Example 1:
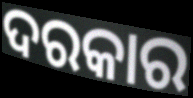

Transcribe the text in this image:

ଦରକାର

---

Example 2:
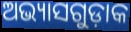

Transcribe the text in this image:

ଅଭ୍ୟାସଗୁଡ଼ାକ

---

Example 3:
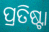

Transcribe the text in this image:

ପ୍ରତିଷ୍ଟା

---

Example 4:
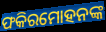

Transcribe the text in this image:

ଫକିରମୋହନଙ୍କ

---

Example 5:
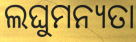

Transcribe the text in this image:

ଲଘୁମନ୍ୟତା